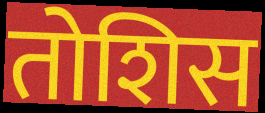
तोशिस